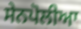
ਸੇਨਪੋਲੀਆ